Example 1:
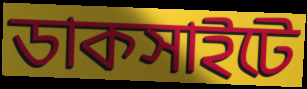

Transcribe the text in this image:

ডাকসাইটে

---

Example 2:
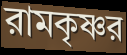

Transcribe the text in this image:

রামকৃষ্ণর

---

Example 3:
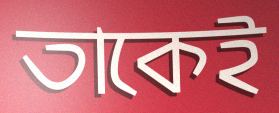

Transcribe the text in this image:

তাকেই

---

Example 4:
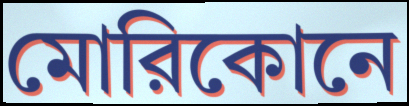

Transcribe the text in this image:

মোরিকোনে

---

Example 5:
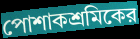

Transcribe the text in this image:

পোশাকশ্রমিকের